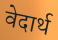
वेदार्थ